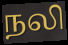
நலி